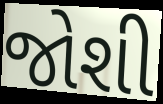
જોશી